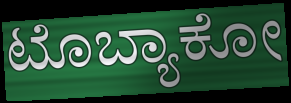
ಟೊಬ್ಯಾಕೋ